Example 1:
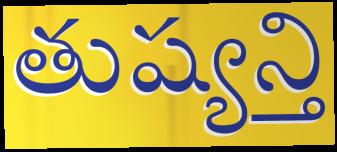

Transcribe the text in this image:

తుష్యన్తి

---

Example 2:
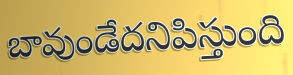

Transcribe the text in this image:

బావుండేదనిపిస్తుంది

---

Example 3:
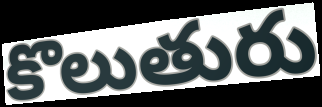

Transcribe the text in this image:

కొలుతురు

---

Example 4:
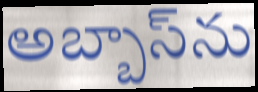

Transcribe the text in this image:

అబ్బాస్‌ను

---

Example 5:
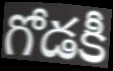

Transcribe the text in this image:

గోడకీ